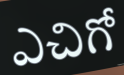
ఎచిగో